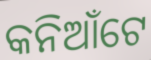
କନିଆଁଟେ